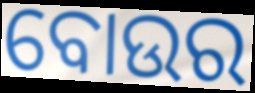
ବୋଉର